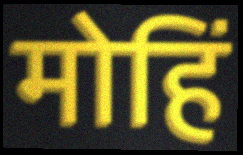
मोहिं